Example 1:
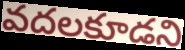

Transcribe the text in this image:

వదలకూడని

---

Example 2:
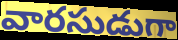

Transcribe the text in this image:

వారసుడుగా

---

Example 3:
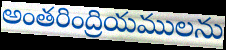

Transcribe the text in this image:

అంతరింద్రియములను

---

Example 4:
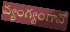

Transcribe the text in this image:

వ్యంగ్యంగానో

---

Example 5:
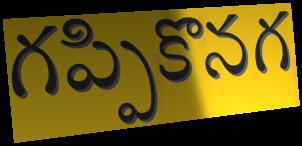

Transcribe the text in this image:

గప్పికొనగ